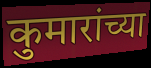
कुमारांच्या